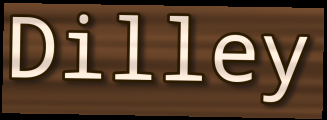
Dilley